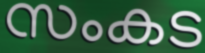
സംകട